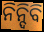
ନିନ୍ଦିବି